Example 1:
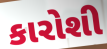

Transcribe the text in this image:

કારોશી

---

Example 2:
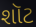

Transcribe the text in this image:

શૉટ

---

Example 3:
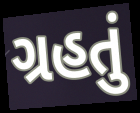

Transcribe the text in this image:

ગ્રહતું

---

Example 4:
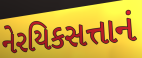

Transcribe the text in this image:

નેરયિકસત્તાનં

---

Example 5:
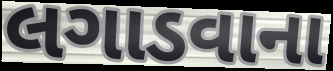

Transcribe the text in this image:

લગાડવાના